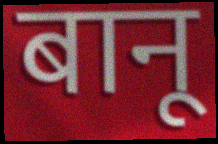
बानू